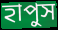
হাপুস